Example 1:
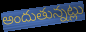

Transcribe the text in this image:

అందుతున్నట్లు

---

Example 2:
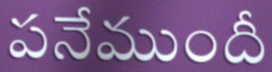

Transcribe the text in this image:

పనేముందీ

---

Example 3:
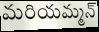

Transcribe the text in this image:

మరియమ్మన్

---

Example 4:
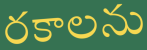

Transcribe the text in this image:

రకాలను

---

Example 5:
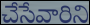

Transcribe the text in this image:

చేసేవారిని